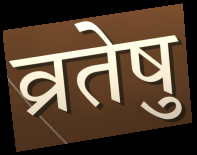
व्रतेषु